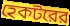
হেকটরের